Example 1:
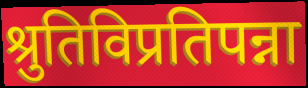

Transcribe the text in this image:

श्रुतिविप्रतिपन्ना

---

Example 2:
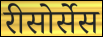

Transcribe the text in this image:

रीसोर्सेस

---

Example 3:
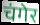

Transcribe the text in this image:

चंगेर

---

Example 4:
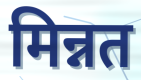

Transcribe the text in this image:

मिन्नत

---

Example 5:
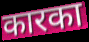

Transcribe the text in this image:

कारका